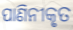
ପାଣିନୀକୃତ